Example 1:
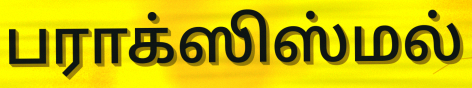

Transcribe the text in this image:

பராக்ஸிஸ்மல்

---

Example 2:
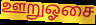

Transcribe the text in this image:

ஊறுஓசை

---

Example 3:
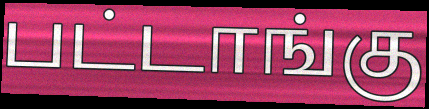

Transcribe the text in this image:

பட்டாங்கு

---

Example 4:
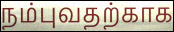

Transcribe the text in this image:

நம்புவதற்காக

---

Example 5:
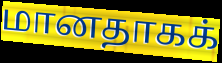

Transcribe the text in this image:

மானதாகக்